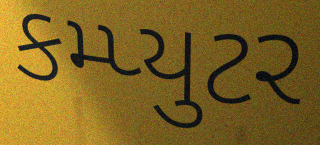
કમ્પ્યુટર